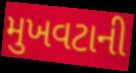
મુખવટાની